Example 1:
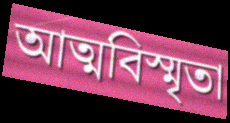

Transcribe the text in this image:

আত্মবিস্মৃতা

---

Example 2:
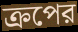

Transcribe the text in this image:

ক্রপের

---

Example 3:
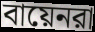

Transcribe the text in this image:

বায়েনরা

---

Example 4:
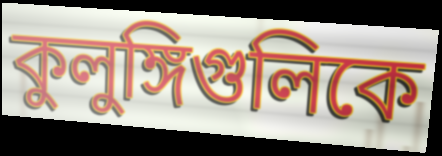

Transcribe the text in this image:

কুলুঙ্গিগুলিকে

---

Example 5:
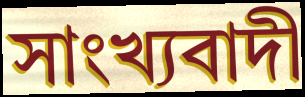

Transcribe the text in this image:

সাংখ্যবাদী